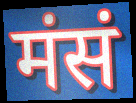
मंसं